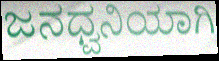
ಜನಧ್ವನಿಯಾಗಿ